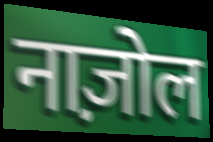
नाज़ोल